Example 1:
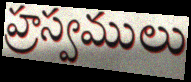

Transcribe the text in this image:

హ్రస్వములు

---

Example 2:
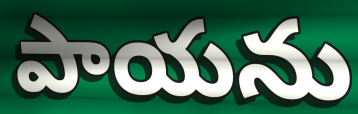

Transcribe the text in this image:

పాయను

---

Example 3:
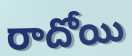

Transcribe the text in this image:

రాదోయి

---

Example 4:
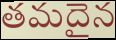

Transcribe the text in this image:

తమదైన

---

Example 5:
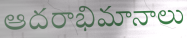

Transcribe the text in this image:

ఆదరాభిమానాలు